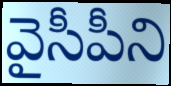
వైసీపీని